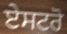
ਏਸਟਰੋ